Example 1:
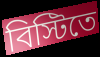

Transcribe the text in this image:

বিস্টিতে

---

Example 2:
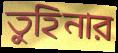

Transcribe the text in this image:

তুহিনার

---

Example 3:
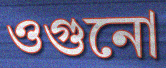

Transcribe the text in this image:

ওগুনো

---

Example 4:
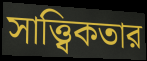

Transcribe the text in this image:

সাত্ত্বিকতার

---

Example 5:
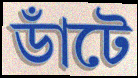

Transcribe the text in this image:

ডাঁটে